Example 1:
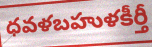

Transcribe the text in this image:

ధవళబహుళకీర్తీ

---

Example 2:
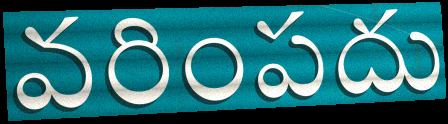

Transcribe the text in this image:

వరింపదు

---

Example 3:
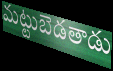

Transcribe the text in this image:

మట్టుబెడతాడు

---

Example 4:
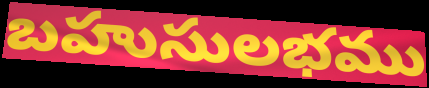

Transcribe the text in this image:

బహుసులభము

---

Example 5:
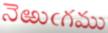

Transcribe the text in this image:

నెఱుఁగము